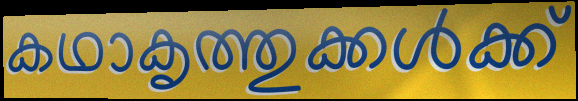
കഥാകൃത്തുക്കൾക്ക്